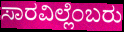
ಸಾರವಿಲ್ಲೆಂಬರು